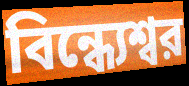
বিন্ধ্যেশ্বর